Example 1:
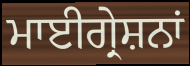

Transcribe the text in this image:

ਮਾਈਗ੍ਰੇਸ਼ਨਾਂ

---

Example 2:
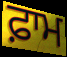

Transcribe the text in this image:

ਫ਼ਾਮ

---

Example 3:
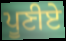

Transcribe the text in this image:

ਪੂਣੀਏ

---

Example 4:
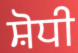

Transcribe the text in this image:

ਸ਼ੋਧੀ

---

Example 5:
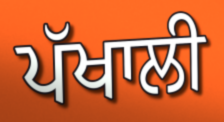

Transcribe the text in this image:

ਪੱਖਾਲੀ